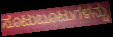
ಸೂಟುಬೂಟುಗಳನ್ನು